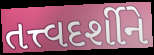
તત્ત્વદર્શીને